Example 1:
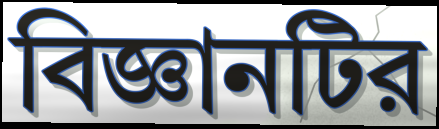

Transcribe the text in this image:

বিজ্ঞানটির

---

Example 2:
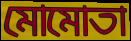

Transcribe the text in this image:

মোমোতা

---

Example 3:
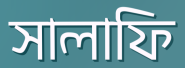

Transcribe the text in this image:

সালাফি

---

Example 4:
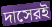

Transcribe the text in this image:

দাসেরই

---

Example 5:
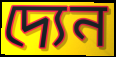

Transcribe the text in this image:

দ্যেন